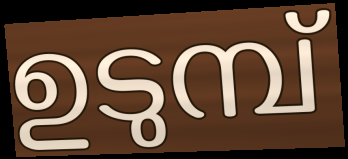
ഉടുമ്പ്